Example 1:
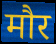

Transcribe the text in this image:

मौर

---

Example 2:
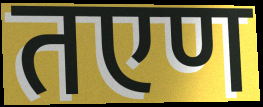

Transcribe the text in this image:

तएण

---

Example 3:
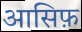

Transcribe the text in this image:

आसिफ़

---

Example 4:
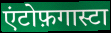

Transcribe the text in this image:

एंटोफ़गास्टा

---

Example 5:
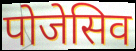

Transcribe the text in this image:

पोजेसिव